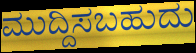
ಮುದ್ದಿಸಬಹುದು